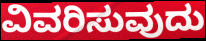
ವಿವರಿಸುವುದು